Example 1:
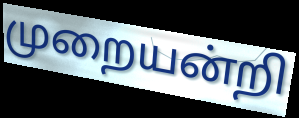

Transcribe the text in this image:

முறையன்றி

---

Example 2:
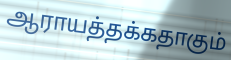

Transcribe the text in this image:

ஆராயத்தக்கதாகும்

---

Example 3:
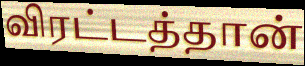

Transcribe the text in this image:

விரட்டத்தான்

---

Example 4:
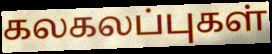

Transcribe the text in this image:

கலகலப்புகள்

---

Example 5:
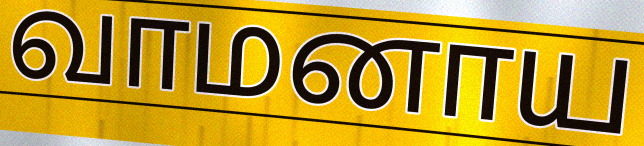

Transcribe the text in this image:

வாமனாய